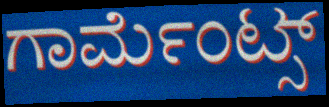
ಗಾರ್ಮೆಂಟ್ಸ್